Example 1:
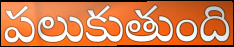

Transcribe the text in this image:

పలుకుతుంది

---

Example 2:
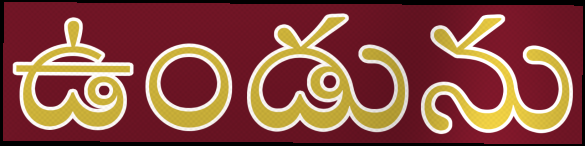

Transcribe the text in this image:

ఉండును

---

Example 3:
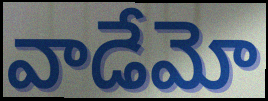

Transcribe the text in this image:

వాడేమో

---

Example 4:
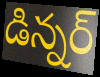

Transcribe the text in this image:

డిన్నర్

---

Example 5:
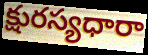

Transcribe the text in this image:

క్షురస్యధారా